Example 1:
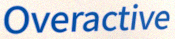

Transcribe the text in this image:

Overactive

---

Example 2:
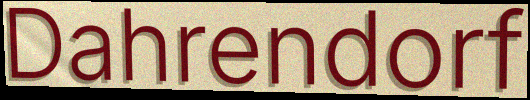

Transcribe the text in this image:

Dahrendorf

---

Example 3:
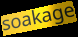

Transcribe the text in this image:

soakage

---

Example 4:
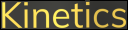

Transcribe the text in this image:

Kinetics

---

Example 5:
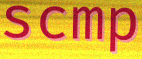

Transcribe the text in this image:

scmp